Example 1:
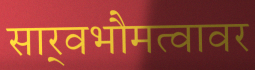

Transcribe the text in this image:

सार्वभौमत्वावर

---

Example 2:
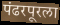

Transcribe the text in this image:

पंढरपूरला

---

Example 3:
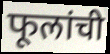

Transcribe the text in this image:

फूलांची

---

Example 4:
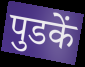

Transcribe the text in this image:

पुडकें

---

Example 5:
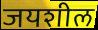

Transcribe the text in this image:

जयशील